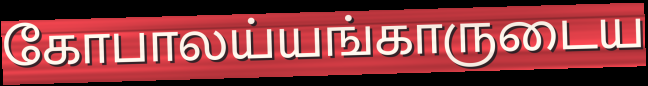
கோபாலய்யங்காருடைய